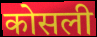
कोसली